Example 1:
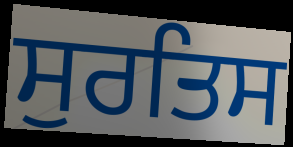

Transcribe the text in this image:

ਸੁਰਤਿਸ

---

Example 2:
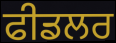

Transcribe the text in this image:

ਫੀਡਲਰ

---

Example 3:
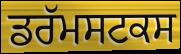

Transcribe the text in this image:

ਡਰੱਮਸਟਕਸ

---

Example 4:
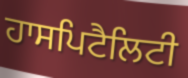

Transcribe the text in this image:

ਹਾਸਪਿਟੈਲਿਟੀ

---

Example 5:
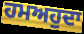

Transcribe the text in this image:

ਹਮਅਹੁਦਾ